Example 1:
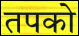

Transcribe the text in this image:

तपको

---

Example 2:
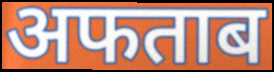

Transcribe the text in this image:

अफताब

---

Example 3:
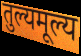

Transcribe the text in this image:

तुल्यमूल्य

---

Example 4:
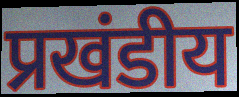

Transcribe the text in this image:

प्रखंडीय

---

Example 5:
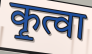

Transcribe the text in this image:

कृ॒त्वा